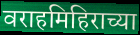
वराहमिहिराच्या